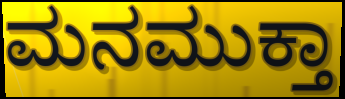
ಮನಮುಕ್ತಾ